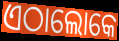
ଏଠାଲୋକେ